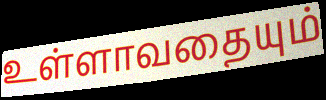
உள்ளாவதையும்